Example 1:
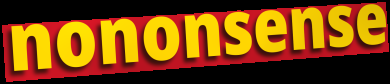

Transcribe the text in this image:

nononsense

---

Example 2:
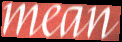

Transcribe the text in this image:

mean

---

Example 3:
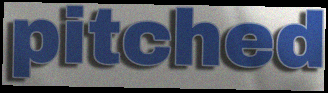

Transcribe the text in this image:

pitched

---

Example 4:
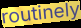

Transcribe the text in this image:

routinely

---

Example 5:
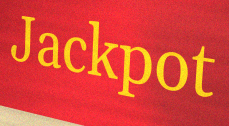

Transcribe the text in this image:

Jackpot